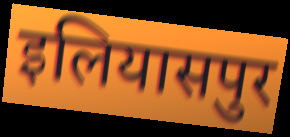
इलियासपुर